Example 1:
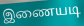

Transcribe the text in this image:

இணையடி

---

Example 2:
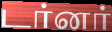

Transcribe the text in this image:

டர்னர்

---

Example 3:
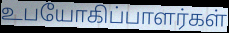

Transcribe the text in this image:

உபயோகிப்பாளர்கள்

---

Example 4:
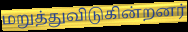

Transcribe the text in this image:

மறுத்துவிடுகின்றனர்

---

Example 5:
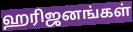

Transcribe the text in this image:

ஹரிஜனங்கள்